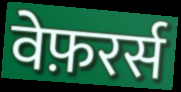
वेफ़रर्स